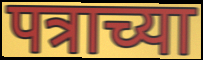
पत्राच्या